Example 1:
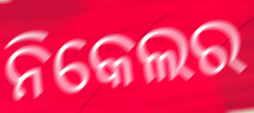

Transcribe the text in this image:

ନିକେଲର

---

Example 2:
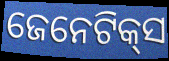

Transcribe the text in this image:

ଜେନେଟିକ୍‌ସ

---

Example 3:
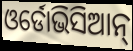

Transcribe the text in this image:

ଓର୍ଡୋଭିସିଆନ୍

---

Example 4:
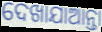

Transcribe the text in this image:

ଦେଖାଯାଆନ୍ତା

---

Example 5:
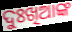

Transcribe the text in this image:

ଦୁଃଖିଆଙ୍କ